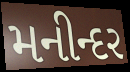
મનીન્દર